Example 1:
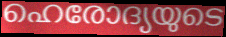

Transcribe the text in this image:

ഹെരോദ്യയുടെ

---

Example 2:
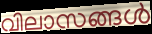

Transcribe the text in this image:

വിലാസങ്ങൾ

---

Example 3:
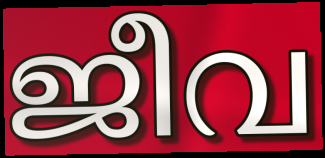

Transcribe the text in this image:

ജീവ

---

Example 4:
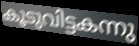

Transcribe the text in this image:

കൂടുവിട്ടകന്നു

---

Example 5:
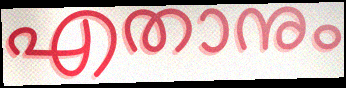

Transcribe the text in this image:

എതാനും